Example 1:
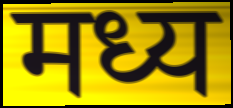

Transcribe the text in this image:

मध्य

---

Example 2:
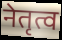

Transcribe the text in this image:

नेतृत्‍व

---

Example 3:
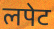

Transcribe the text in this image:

लपेट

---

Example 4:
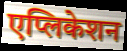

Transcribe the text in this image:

एप्लिकेशन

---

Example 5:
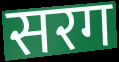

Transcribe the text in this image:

सरग